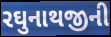
રઘુનાથજીની